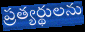
ప్రత్యర్థులను